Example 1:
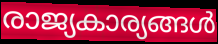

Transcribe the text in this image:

രാജ്യകാര്യങ്ങൾ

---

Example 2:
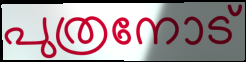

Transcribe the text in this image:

പുത്രനോട്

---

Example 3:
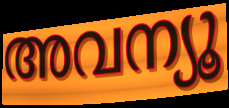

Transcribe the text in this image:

അവന്യൂ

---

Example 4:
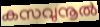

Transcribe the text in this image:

കസവുനൂൽ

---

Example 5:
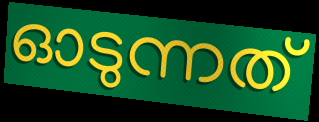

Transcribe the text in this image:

ഓടുന്നത്